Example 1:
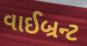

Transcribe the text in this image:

વાઈબ્રન્ટ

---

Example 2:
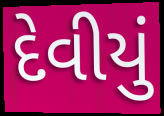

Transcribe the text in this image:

દેવીયું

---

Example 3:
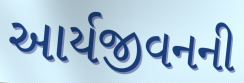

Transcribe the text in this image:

આર્યજીવનની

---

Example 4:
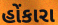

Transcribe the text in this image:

હોંકારા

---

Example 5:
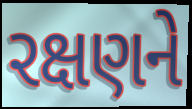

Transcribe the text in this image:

રક્ષણને